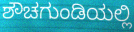
ಶೌಚಗುಂಡಿಯಲ್ಲಿ